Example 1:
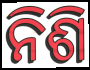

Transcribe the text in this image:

ନିଶି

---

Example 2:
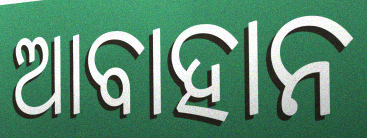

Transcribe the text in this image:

ଆବାହାନ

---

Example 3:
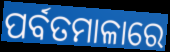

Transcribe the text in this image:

ପର୍ବତମାଳାରେ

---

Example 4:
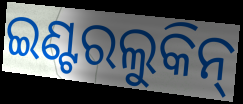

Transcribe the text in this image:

ଇଣ୍ଟରଲୁକିନ୍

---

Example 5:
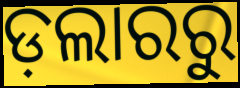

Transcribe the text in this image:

ଡ଼ଲାରରୁ